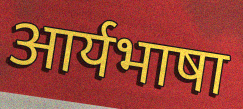
आर्यभाषा